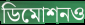
ডিমোশনও